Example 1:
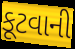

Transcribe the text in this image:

કૂટવાની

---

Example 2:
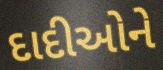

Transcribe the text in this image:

દાદીઓને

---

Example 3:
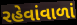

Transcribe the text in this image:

રહેવાંવાળાં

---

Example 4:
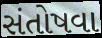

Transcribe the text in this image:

સંતોષવા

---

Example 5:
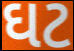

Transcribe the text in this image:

ઘટ